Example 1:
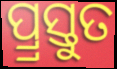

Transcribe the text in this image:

ପ୍ର୍ରସ୍ତୁତ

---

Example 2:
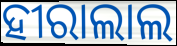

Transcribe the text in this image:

ହୀରାଲାଲ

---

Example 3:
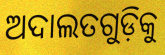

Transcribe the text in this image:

ଅଦାଲତଗୁଡ଼ିକୁ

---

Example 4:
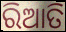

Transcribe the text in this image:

ରିଆତି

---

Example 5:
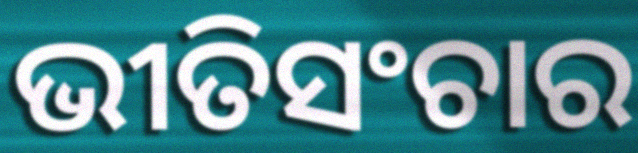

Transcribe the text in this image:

ଭୀତିସଂଚାର